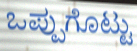
ಒಪ್ಪುಗೊಟ್ಟು